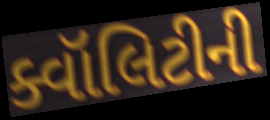
ક્વૉલિટીની